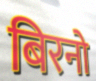
बिरनो